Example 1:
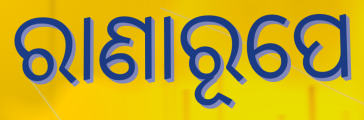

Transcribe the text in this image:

ରାଣାରୂପେ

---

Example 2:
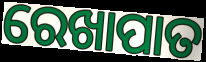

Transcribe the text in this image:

ରେଖାପାତ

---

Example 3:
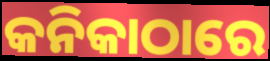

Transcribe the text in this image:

କନିକାଠାରେ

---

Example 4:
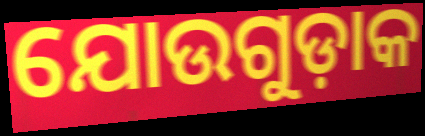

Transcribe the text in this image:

ଯୋଉଗୁଡ଼ାକ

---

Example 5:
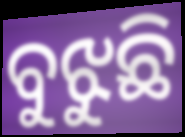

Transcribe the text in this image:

ବୁଝୁଛି